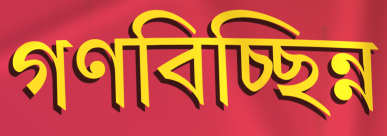
গণবিচ্ছিন্ন